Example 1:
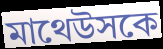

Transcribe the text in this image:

মাথেউসকে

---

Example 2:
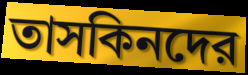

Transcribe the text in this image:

তাসকিনদের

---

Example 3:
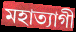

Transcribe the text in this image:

মহাত্যাগী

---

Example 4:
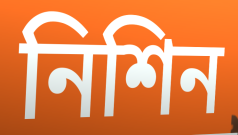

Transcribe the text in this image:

নিশিন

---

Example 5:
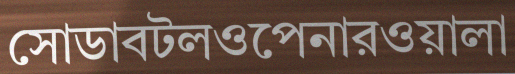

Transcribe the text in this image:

সোডাবটলওপেনারওয়ালা